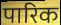
पारिक